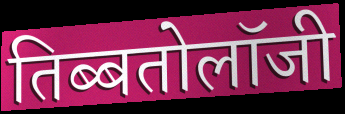
तिब्बतोलॉजी